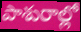
పాశురాల్లో